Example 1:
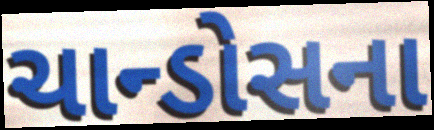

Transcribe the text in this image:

ચાન્ડોસના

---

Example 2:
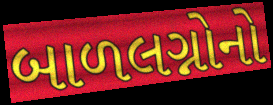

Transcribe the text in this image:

બાળલગ્નોનો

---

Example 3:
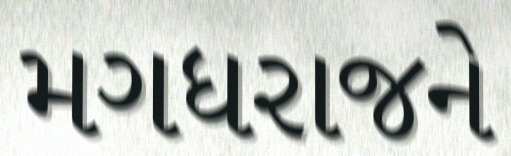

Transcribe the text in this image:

મગધરાજને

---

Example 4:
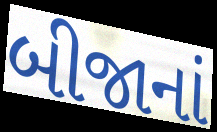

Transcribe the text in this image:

બીજાનાં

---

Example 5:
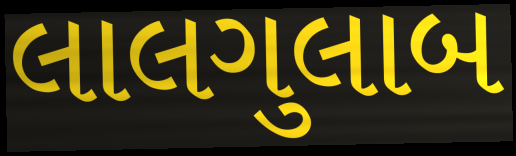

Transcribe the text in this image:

લાલગુલાબ